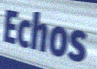
Echos